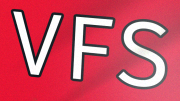
VFS